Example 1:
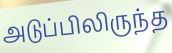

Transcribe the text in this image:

அடுப்பிலிருந்த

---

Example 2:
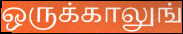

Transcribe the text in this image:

ஒருக்காலுங்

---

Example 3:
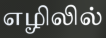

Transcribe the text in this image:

எழிலில்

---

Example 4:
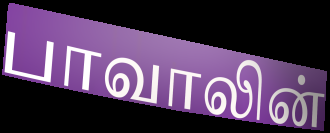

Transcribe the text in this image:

பாவாலின்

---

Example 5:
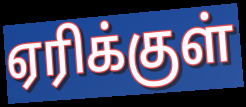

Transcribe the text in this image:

ஏரிக்குள்